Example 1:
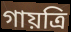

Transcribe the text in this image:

গায়ত্রি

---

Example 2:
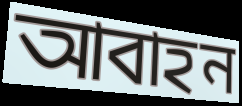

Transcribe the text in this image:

আবাহন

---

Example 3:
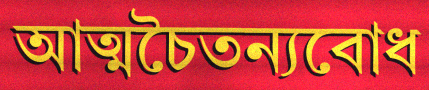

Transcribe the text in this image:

আত্মচৈতন্যবোধ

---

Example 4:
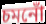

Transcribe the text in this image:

চমনোঁ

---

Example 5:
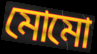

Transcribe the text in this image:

মোমো